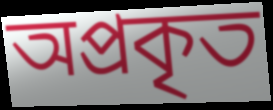
অপ্ৰকৃত